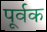
पूर्वक